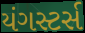
યંગસ્ટર્સ